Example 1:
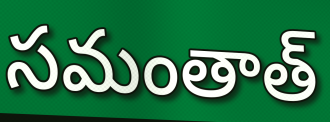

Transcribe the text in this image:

సమంతాత్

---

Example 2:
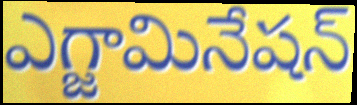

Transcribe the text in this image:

ఎగ్జామినేషన్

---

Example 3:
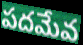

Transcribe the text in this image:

పదమేవ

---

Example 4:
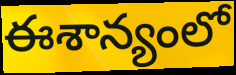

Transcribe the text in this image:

ఈశాన్యంలో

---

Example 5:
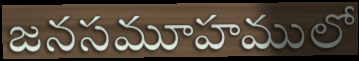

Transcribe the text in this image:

జనసమూహములో